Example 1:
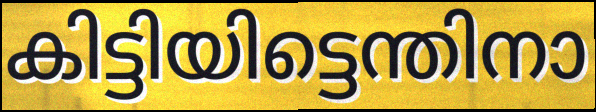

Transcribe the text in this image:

കിട്ടിയിട്ടെന്തിനാ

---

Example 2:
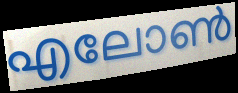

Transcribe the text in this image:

എലോൺ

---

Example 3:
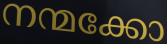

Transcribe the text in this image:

നന്മക്കോ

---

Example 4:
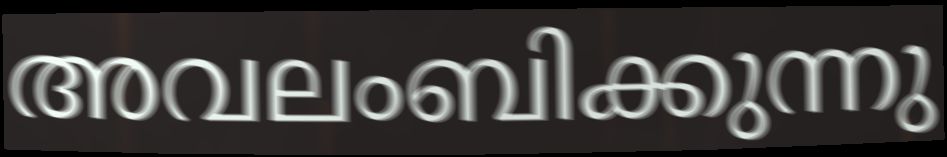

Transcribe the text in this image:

അവലംബിക്കുന്നു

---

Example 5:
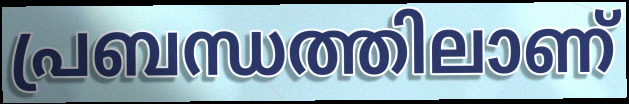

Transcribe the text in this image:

പ്രബന്ധത്തിലാണ്